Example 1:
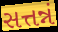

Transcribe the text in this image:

સત્તન્નં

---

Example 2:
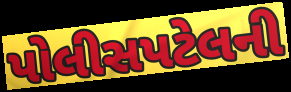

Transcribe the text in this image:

પોલીસપટેલની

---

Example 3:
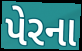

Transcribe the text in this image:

પેરના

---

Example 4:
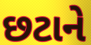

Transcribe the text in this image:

છટાને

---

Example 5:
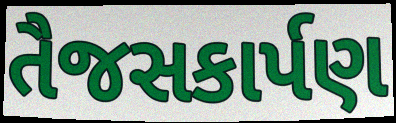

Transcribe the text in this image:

તૈજસકાર્પણ